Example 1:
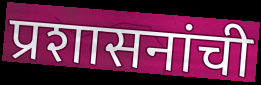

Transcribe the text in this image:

प्रशासनांची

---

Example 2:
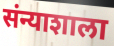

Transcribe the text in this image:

संन्याशाला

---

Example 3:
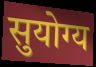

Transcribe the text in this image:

सुयोग्य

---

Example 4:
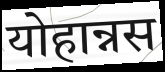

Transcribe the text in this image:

योहान्नस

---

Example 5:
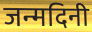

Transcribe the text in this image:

जन्मदिनी